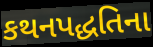
કથનપદ્ધતિના